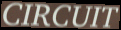
CIRCUIT